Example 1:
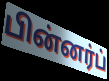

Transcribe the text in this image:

பின்னர்ப்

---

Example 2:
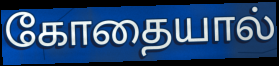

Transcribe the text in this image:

கோதையால்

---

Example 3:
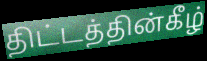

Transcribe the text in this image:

திட்டத்தின்கீழ்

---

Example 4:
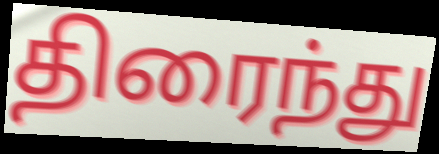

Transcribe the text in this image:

திரைந்து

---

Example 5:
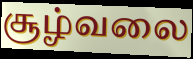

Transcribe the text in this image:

சூழ்வலை